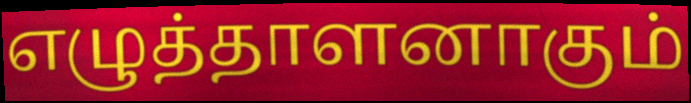
எழுத்தாளனாகும்